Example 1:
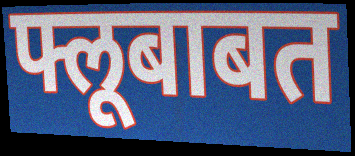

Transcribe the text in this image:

फ्लूबाबत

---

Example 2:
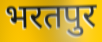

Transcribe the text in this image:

भरतपुर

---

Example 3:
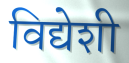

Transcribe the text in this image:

विद्येशी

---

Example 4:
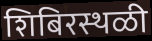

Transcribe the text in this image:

शिबिरस्थळी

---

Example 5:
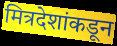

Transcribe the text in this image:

मित्रदेशांकडून